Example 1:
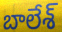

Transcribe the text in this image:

బాలేశ్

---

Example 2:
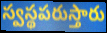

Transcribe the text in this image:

స్వస్థపరుస్తారు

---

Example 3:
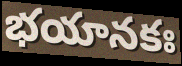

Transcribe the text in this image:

భయానకః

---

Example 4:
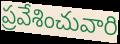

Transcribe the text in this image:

ప్రవేశించువారి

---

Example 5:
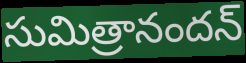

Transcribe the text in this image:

సుమిత్రానందన్